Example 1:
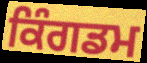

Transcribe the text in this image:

ਕਿੰਗਡਮ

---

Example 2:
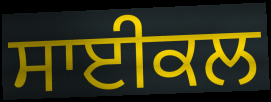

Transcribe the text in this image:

ਸਾਈਕਲ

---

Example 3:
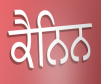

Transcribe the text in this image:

ਕੈਨਿਨ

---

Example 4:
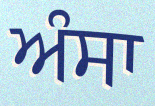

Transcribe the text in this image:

ਅੰਸਾ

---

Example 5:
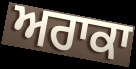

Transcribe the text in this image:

ਅਰਾਕਾ